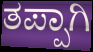
ತಪ್ಪಾಗಿ